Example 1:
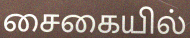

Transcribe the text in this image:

சைகையில்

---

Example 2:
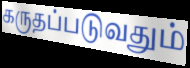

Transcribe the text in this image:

கருதப்படுவதும்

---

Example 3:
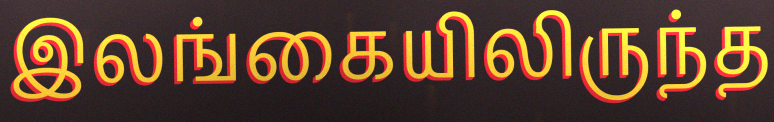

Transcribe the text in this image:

இலங்கையிலிருந்த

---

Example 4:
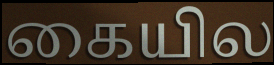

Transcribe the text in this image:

கையில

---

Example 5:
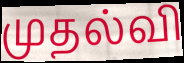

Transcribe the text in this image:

முதல்வி